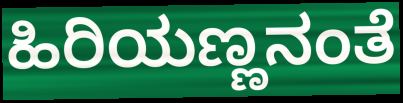
ಹಿರಿಯಣ್ಣನಂತೆ